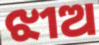
ଝୀଅ